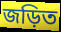
জড়িত